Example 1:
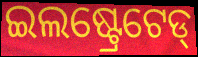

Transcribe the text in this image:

ଇଲଷ୍ଟ୍ରେଟେଡ୍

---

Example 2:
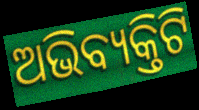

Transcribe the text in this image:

ଅଭିବ୍ୟକ୍ତିଟି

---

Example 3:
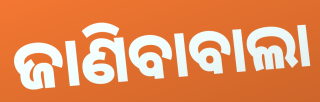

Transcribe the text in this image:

ଜାଣିବାବାଲା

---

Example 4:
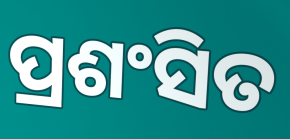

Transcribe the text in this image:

ପ୍ରଶଂସିତ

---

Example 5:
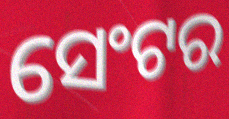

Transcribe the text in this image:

ସେଂଟର